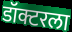
डॉक्टरला